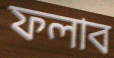
ফলাব